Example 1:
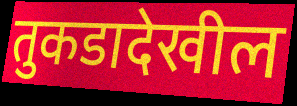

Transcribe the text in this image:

तुकडादेखील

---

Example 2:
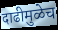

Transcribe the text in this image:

दाढीमुळेच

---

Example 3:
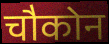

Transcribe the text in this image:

चौकोन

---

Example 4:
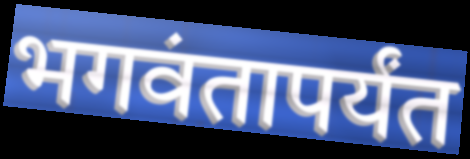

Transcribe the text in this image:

भगवंतापर्यंत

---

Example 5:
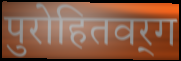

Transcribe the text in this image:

पुरोहितवर्ग